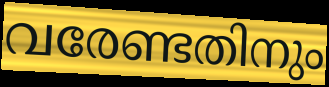
വരേണ്ടതിനും